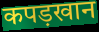
कपड़खान